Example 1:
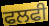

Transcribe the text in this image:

ਫਲਫੀ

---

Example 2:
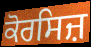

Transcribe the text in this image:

ਕੋਰਸਿਜ਼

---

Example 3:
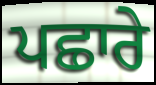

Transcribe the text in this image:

ਪਛਾਰੇ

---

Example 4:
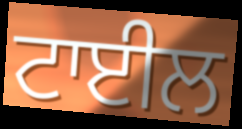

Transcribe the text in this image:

ਟਾਈਲ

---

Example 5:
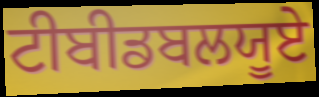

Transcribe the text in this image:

ਟੀਬੀਡਬਲਯੂਏ